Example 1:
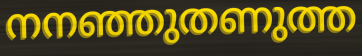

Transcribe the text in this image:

നനഞ്ഞുതണുത്ത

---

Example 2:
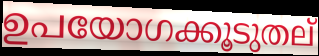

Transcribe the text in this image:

ഉപയോഗക്കൂടുതല്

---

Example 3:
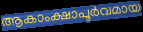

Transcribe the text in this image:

ആകാംക്ഷാപൂർവമായ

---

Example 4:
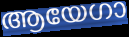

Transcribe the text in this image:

ആയേഗാ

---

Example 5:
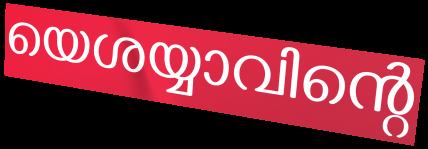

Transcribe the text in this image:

യെശയ്യാവിന്റെ